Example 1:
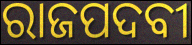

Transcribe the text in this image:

ରାଜପଦବୀ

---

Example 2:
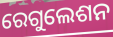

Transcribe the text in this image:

ରେଗୁଲେଶନ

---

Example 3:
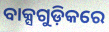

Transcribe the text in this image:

ବାକ୍ସଗୁଡ଼ିକରେ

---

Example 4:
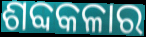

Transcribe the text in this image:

ଶବ୍ଦକଳାର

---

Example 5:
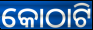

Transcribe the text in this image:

କୋଠାଟି